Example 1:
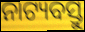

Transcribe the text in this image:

ନାଟ୍ୟବସ୍ତୁ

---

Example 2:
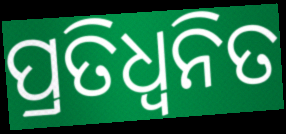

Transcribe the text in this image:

ପ୍ରତିଧ୍ଵନିତ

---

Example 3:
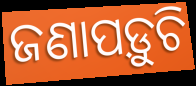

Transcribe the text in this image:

ଜଣାପଡ଼ୁଚି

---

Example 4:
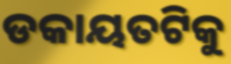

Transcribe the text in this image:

ଡକାୟତଟିକୁ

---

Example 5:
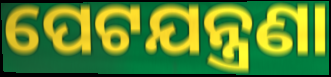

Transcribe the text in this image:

ପେଟଯନ୍ତ୍ରଣା